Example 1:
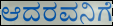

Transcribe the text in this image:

ಆದರವನಿಗೆ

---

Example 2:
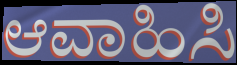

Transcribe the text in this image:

ಆವಾಹಿಸಿ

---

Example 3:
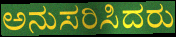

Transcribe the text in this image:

ಅನುಸರಿಸಿದರು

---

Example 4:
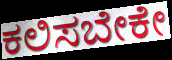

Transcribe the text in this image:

ಕಲಿಸಬೇಕೇ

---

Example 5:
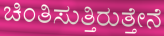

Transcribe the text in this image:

ಚಿಂತಿಸುತ್ತಿರುತ್ತೇನೆ